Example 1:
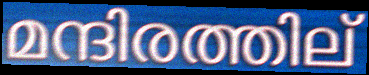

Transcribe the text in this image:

മന്ദിരത്തില്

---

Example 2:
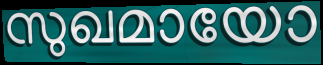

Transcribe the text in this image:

സുഖമായോ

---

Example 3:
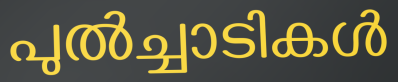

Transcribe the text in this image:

പുൽച്ചാടികൾ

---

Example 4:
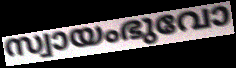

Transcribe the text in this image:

സ്വായംഭുവോ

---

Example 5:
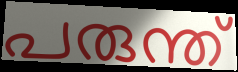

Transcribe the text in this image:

പരുന്ത്